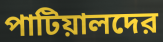
পাটিয়ালদের